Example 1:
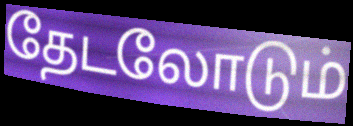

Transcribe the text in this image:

தேடலோடும்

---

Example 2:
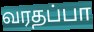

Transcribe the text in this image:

வரதப்பா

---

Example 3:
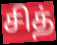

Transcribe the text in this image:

சித்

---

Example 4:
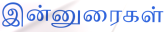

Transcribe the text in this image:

இன்னுரைகள்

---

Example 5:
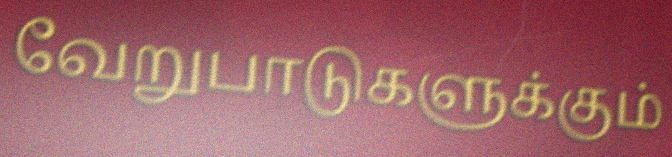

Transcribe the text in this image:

வேறுபாடுகளுக்கும்